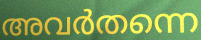
അവർതന്നെ